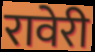
रावेरी